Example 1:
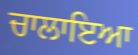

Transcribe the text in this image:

ਚਾਲਾਇਆ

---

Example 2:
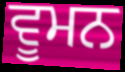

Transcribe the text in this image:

ਵੂਮਨ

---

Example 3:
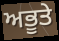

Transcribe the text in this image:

ਅਭੂਤੇ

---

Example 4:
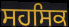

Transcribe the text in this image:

ਸਹਸਿਕ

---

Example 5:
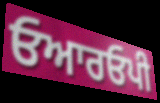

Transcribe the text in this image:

ਓਆਰਓਪੀ